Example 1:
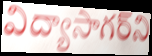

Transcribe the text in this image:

విద్యాసాగర్‌ని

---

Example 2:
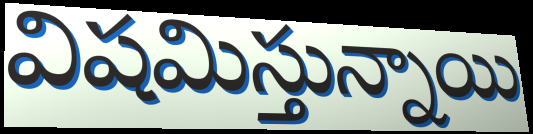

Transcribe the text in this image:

విషమిస్తున్నాయి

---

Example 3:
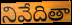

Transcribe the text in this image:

నివేదితా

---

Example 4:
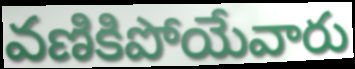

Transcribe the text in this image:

వణికిపోయేవారు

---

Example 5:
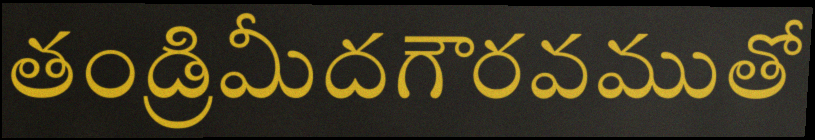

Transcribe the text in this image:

తండ్రిమీదగౌరవముతో